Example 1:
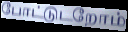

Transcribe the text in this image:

போட்டுடறோம்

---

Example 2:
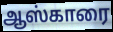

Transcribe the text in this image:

ஆஸ்காரை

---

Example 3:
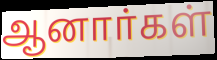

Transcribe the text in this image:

ஆனார்கள்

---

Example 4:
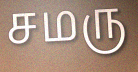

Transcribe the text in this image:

சமரு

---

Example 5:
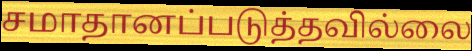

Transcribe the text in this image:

சமாதானப்படுத்தவில்லை